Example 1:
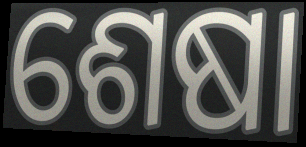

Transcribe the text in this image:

ଶେଷା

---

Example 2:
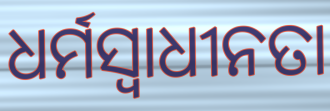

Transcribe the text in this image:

ଧର୍ମସ୍ୱାଧୀନତା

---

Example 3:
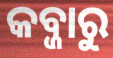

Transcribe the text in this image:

କବ୍ଜାରୁ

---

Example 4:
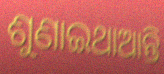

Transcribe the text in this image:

ଶୁଣାଇଥାଆନ୍ତି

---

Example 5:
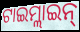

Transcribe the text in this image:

ଟାଇମ୍ଲାଇନ୍